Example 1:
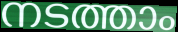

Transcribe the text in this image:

നടത്താം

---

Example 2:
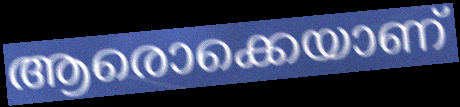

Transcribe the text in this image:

ആരൊക്കെയാണ്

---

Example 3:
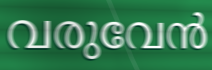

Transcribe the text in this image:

വരുവേൻ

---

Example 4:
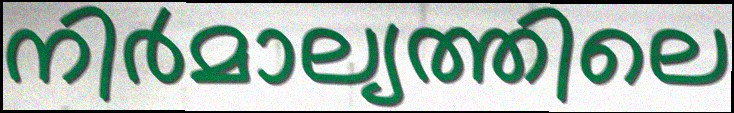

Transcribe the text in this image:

നിർമാല്യത്തിലെ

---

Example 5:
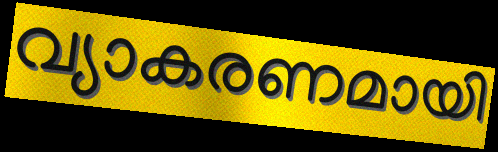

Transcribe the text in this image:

വ്യാകരണമായി